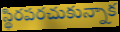
స్థిరపరచుకున్నాక